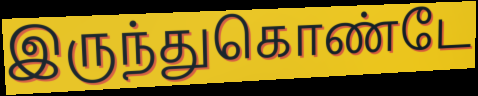
இருந்துகொண்டே